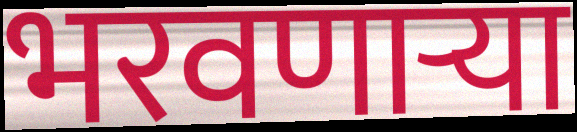
भरवणाऱ्या